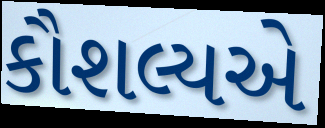
કૌશલ્યએ